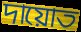
দায়োত